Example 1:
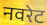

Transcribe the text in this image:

नवरेट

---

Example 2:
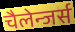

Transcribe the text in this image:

चैलेन्जर्स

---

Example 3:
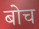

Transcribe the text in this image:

बोच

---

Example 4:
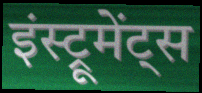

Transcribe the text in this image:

इंस्‍ट्रूमेंट्स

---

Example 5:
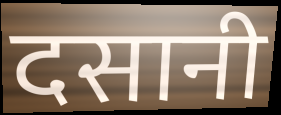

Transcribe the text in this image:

दसानी